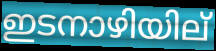
ഇടനാഴിയില്